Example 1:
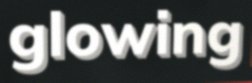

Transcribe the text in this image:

glowing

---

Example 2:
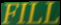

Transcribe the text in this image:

FILL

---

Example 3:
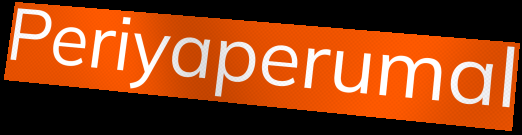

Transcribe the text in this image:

Periyaperumal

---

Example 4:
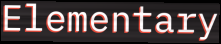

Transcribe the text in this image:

Elementary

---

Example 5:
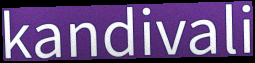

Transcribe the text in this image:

kandivali